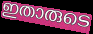
ഇതാരുടെ